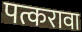
पत्करावा